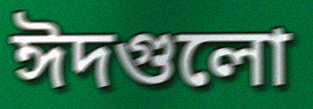
ঈদগুলো